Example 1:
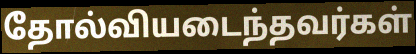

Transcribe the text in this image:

தோல்வியடைந்தவர்கள்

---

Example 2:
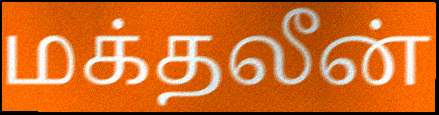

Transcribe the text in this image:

மக்தலீன்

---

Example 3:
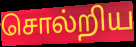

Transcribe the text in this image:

சொல்றிய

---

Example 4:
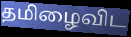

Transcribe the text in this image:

தமிழைவிட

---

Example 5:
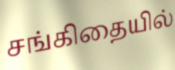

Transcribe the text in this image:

சங்கிதையில்